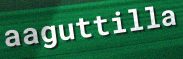
aaguttilla